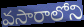
వసారాలోని